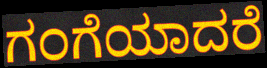
ಗಂಗೆಯಾದರೆ